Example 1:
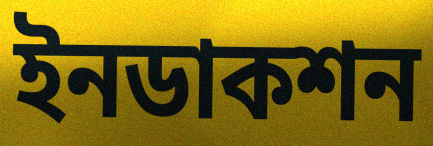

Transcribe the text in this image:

ইনডাকশন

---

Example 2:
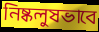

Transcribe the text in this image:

নিষ্কলুষভাবে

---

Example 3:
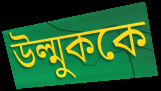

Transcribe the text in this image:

উল্মুককে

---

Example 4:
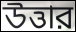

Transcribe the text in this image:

উত্তার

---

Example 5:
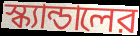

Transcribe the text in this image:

স্ক্যান্ডালের